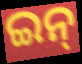
ଇନ୍